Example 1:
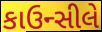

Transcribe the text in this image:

કાઉન્સીલે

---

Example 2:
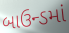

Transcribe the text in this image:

બાઉન્ડમાં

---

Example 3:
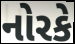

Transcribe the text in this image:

નોરકે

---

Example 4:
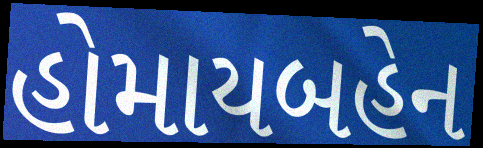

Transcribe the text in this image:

હોમાયબહેન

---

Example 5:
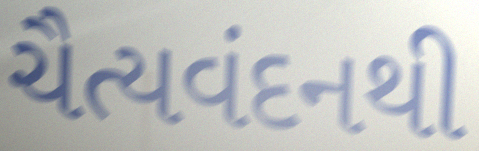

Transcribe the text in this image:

ચૈત્યવંદનથી